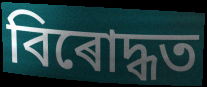
বিৰোদ্ধত